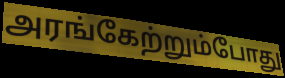
அரங்கேற்றும்போது